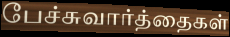
பேச்சுவார்த்தைகள்